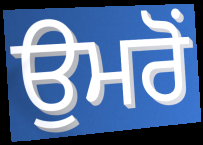
ਉਮਰੋਂ